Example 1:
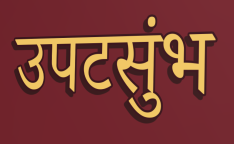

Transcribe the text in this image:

उपटसुंभ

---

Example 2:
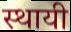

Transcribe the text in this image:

स्‍थायी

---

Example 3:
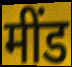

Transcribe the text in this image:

मींड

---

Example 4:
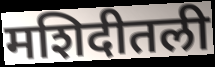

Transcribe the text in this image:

मशिदीतली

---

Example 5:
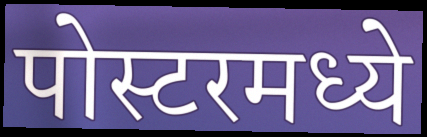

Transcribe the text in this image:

पोस्टरमध्ये